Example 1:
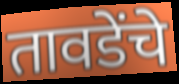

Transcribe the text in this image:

तावडेंचे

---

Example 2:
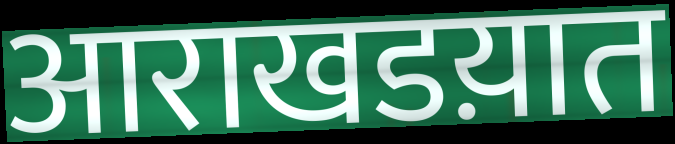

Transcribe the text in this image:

आराखडय़ात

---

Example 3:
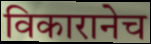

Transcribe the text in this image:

विकारानेच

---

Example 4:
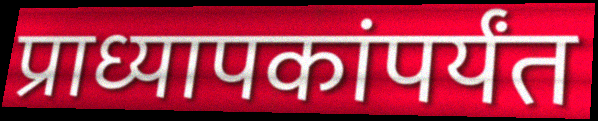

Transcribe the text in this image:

प्राध्यापकांपर्यंत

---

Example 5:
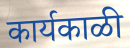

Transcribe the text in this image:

कार्यकाळी